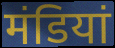
मंडियां